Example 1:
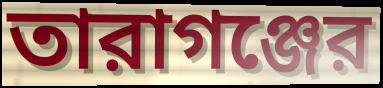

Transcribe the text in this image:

তারাগঞ্জের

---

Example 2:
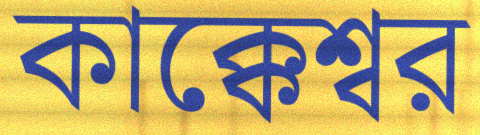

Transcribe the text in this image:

কাক্কেশ্বর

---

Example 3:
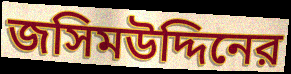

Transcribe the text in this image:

জসিমউদ্দিনের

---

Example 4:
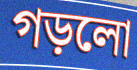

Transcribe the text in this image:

গড়লো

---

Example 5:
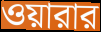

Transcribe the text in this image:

ওয়ারার